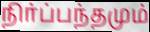
நிர்ப்பந்தமும்